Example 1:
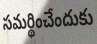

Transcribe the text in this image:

సమర్థించేందుకు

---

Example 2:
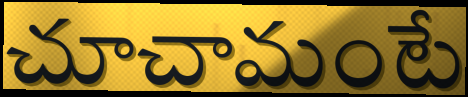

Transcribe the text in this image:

చూచామంటే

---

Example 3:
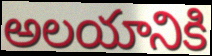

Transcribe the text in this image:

అలయానికి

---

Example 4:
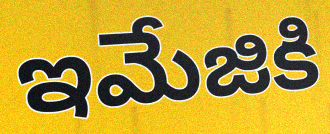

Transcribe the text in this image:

ఇమేజికి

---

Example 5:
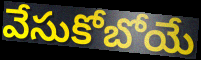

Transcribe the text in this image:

వేసుకోబోయే